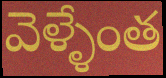
వెళ్ళేంత